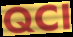
QCI